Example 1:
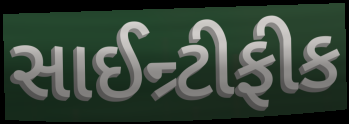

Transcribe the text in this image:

સાઈન્ર્ટીફીક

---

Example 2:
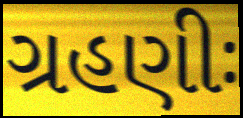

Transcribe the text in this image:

ગ્રહણીઃ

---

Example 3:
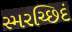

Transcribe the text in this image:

સ્મરચ્છિદં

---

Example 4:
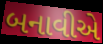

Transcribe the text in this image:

બનાવીએ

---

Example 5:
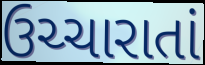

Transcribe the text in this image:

ઉચ્ચારાતાં